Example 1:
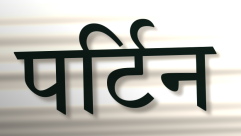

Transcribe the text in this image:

पर्टिन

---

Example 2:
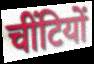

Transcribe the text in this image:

चींटियों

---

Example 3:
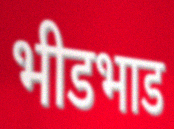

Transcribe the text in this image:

भीडभाड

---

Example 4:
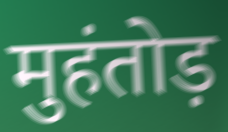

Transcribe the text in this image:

मुहंतोड़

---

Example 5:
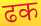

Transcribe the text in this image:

ढक